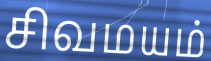
சிவமயம்